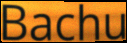
Bachu